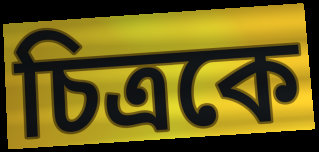
চিত্রকে